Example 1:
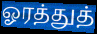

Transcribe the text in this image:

ஓரத்துத்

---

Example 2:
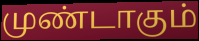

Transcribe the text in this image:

முண்டாகும்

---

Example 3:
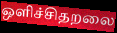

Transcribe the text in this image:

ஒளிச்சிதறலை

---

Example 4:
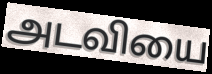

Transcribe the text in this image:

அடவியை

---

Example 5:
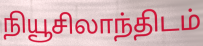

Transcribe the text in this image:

நியூசிலாந்திடம்